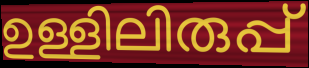
ഉള്ളിലിരുപ്പ്